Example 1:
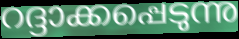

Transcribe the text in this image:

റദ്ദാക്കപ്പെടുന്നു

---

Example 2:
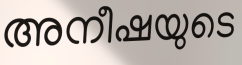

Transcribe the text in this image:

അനീഷയുടെ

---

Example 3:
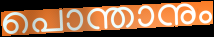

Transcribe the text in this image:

പൊന്താനും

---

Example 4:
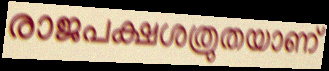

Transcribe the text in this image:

രാജപക്ഷശത്രുതയാണ്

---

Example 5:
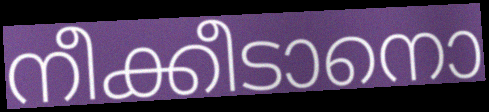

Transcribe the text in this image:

നീക്കീടാനൊ